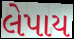
લેપાય